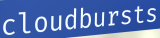
cloudbursts